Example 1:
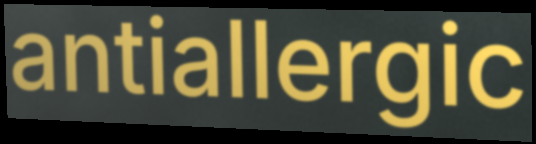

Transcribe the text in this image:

antiallergic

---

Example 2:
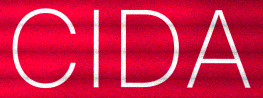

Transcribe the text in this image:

CIDA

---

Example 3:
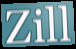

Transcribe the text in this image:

Zill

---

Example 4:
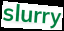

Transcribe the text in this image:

slurry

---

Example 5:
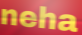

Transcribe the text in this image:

neha